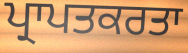
ਪ੍ਰਾਪਤਕਰਤਾ